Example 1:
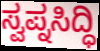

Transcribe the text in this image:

ಸ್ವಪ್ನಸಿದ್ಧಿ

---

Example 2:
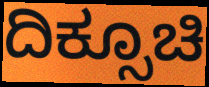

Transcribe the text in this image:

ದಿಕ್ಸೂಚಿ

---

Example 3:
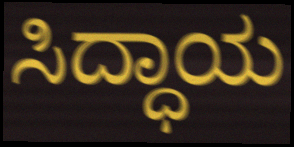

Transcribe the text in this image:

ಸಿದ್ಧಾಯ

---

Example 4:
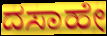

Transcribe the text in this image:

ದಸಾಹೇ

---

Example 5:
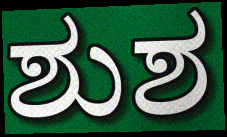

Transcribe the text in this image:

ಶುಶ